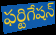
ఫర్టిగేషన్